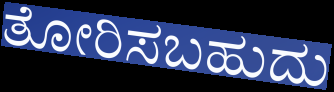
ತೋರಿಸಬಹುದು